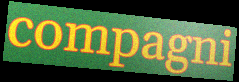
compagni